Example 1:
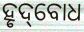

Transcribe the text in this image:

ହୃଦ୍‌ବୋଧ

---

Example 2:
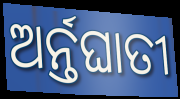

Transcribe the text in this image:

ଅର୍ନ୍ତଘାତୀ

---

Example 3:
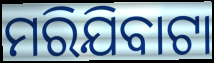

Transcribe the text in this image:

ମରିଯିବାଟା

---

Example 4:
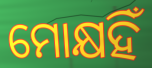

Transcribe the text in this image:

ମୋକ୍ଷହିଁ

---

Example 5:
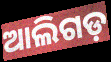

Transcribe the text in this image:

ଆଲିଗଡ଼